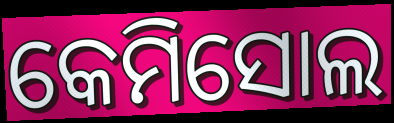
କେମିସୋଲ